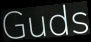
Guds